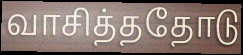
வாசித்ததோடு